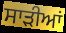
ਸਾਡ਼ੀਆਂ